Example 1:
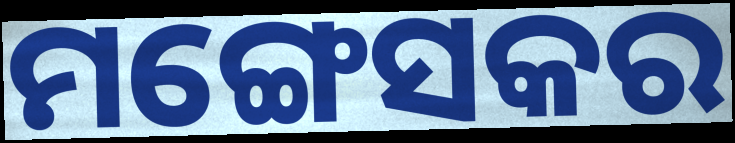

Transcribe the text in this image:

ମଙ୍ଗେସକର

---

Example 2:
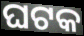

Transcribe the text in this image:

ଘଟକ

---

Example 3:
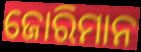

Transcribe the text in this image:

ଜୋରିମାନ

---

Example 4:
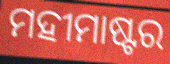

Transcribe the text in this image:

ମହୀମାଷ୍ଟର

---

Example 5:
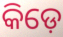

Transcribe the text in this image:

କିଡ଼େ